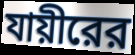
যায়ীরের